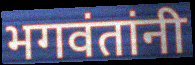
भगवंतांनी